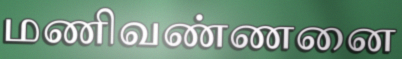
மணிவண்ணனை